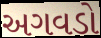
અગવડો